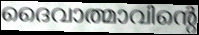
ദൈവാത്മാവിന്റെ